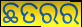
ଛତରର